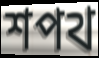
শপথ